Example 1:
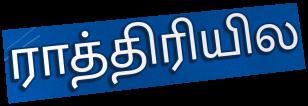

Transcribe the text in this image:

ராத்திரியில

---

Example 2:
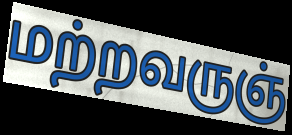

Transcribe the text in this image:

மற்றவருஞ்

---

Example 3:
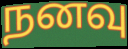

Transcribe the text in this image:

நனவு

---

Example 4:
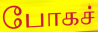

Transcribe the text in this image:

போகச்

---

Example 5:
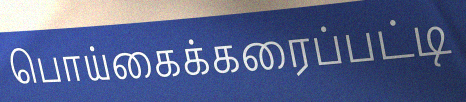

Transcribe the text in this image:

பொய்கைக்கரைப்பட்டி